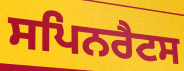
ਸਪਿਨਰੈਟਸ